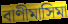
বাণীমাসিমা